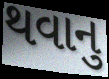
થવાનુ